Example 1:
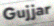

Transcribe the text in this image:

Gujjar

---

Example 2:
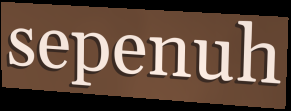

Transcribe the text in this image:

sepenuh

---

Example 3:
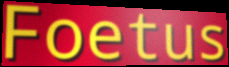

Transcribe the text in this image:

Foetus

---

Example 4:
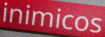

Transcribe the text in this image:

inimicos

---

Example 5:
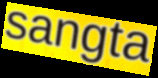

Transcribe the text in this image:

sangta